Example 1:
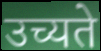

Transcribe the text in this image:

उच्यते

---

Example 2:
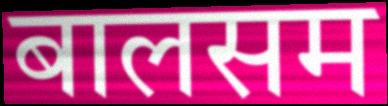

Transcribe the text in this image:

बालसम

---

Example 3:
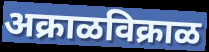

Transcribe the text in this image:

अक्राळविक्राळ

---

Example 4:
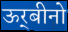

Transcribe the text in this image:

ऊर्बीनो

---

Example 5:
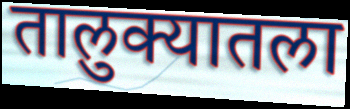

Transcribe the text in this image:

तालुक्यातला